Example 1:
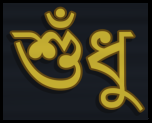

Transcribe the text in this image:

শুঁধু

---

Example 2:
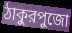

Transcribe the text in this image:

ঠাকুরপুজো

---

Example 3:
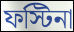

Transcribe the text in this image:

ফস্টিনা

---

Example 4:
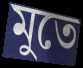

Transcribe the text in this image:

মুতে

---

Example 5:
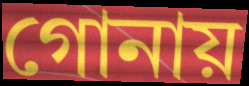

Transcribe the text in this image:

গোনায়